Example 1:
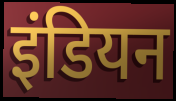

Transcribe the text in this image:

इंडियन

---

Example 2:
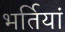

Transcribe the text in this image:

भर्तियां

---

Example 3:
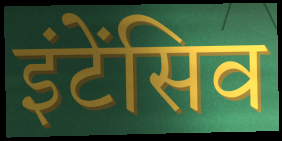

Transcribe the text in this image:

इंटेंसिव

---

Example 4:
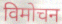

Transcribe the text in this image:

विमोचन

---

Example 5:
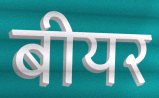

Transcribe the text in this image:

बीयर